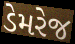
ડેમરેજ